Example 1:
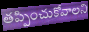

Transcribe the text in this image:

తప్పించుకోవాలని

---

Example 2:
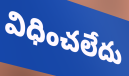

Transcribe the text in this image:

విధించలేదు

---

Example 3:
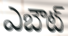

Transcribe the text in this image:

ఎబౌట్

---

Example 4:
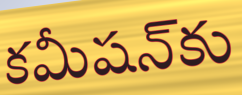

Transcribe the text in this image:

కమీషన్‌కు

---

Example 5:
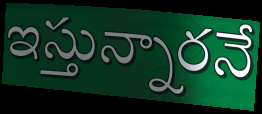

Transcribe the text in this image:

ఇస్తున్నారనే